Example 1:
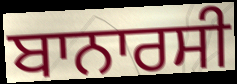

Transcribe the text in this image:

ਬਾਨਾਰਸੀ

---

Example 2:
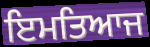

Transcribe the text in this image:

ਇਮਤਿਆਜ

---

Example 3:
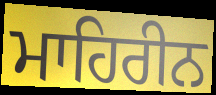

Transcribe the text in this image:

ਮਾਹਿਰੀਨ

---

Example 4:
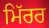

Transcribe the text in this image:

ਮਿੱਰਰ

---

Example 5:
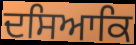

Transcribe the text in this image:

ਦਸਿਆਕਿ